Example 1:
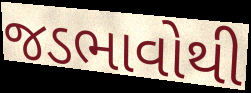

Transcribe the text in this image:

જડભાવોથી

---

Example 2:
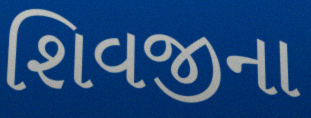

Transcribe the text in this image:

શિવજીના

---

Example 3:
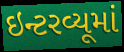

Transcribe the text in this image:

ઇન્ટરવ્યૂમાં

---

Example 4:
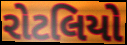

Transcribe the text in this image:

રોટલિયો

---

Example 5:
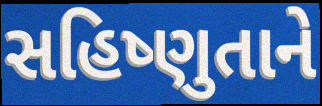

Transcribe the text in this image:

સહિષ્ણુતાને